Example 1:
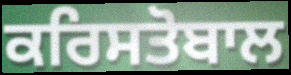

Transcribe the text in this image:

ਕਰਿਸਤੋਬਾਲ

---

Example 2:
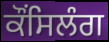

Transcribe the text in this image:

ਕੌਂਸਿਲੰਗ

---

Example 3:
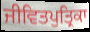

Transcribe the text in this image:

ਜੀਵਿਤਪੁਤ੍ਰਿਕਾ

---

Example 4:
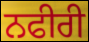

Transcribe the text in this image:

ਨਫੀਰੀ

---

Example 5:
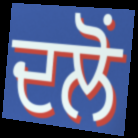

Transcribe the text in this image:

ਦਲੋਂ